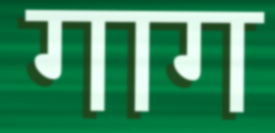
गाग